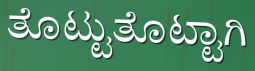
ತೊಟ್ಟುತೊಟ್ಟಾಗಿ